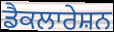
ਡੈਕਲਾਰੇਸ਼ਨ